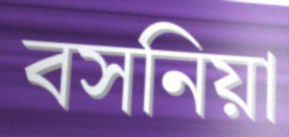
বসনিয়া